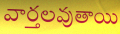
వార్తలవుతాయి